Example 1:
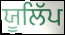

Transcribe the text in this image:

ਯੂਲਿੱਪ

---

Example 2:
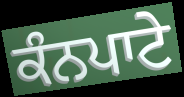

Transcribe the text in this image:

ਕੰਨਪਾਟੇ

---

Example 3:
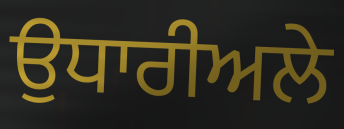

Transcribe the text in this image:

ਉਧਾਰੀਅਲੇ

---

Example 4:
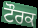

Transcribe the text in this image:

ਟੌਰਕ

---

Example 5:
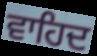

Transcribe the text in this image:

ਵਾਹਿਦ